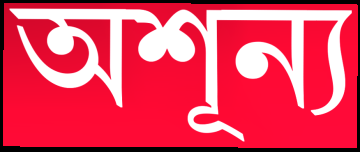
অশূন্য